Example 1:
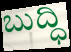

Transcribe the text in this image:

ಬುದ್ಧಿ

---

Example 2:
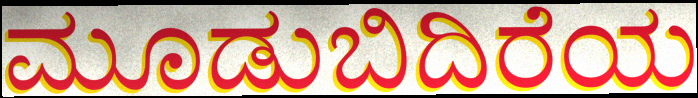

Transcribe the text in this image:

ಮೂಡುಬಿದಿರೆಯ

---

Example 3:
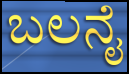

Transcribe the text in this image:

ಬಲನೈ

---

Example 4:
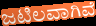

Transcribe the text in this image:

ಜಟಿಲವಾಗಿವೆ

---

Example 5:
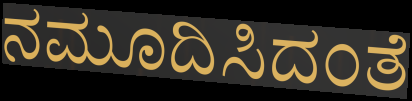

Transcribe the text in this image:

ನಮೂದಿಸಿದಂತೆ